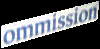
ommission